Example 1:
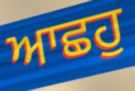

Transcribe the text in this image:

ਆਛਹੁ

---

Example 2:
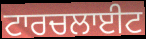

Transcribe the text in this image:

ਟਾਰਚਲਾਈਟ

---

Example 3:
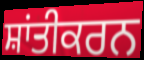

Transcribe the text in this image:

ਸ਼ਾਂਤੀਕਰਨ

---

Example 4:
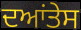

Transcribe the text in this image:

ਦਆਂਤੇਸ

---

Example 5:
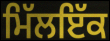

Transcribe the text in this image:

ਮਿੱਲਇੱਕ